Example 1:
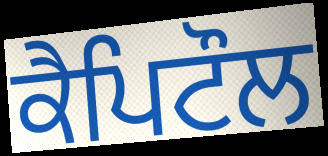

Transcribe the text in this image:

ਕੈਪਿਟੌਲ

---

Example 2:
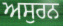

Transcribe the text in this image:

ਅਸੁਰਨ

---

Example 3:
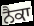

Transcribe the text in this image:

ਨੈਕਾ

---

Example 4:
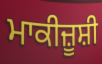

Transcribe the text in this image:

ਮਾਕੀਜ਼ੂਸ਼ੀ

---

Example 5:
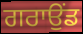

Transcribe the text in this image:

ਗਰਾਉਂਡ